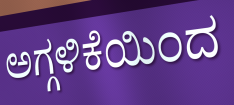
ಅಗ್ಗಳಿಕೆಯಿಂದ